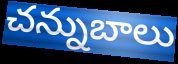
చన్నుబాలు